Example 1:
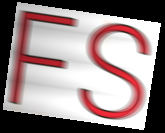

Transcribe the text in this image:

FS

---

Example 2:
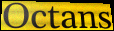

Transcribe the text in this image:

Octans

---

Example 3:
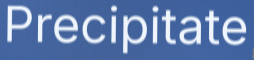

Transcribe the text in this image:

Precipitate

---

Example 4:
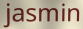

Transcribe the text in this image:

jasmin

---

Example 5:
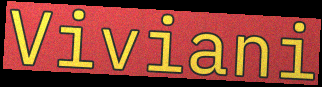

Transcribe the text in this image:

Viviani